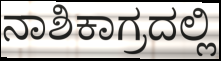
ನಾಶಿಕಾಗ್ರದಲ್ಲಿ